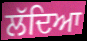
ਲੱਦਿਆ